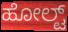
ಹೋಲ್ಟ್